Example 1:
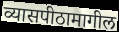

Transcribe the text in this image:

व्यासपीठामागील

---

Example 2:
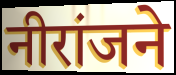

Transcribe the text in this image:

नीरांजने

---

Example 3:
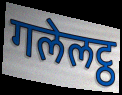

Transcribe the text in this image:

गलेलट्ठ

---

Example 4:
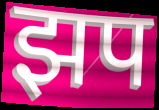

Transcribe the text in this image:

झप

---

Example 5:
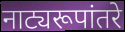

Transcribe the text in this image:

नाट्यरूपांतरे